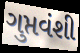
ગુપ્તવંશી